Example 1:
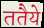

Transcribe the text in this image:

ततैये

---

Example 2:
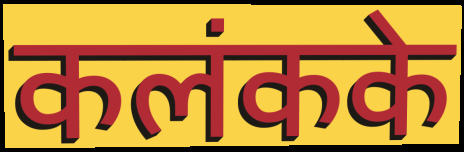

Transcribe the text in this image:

कलंकके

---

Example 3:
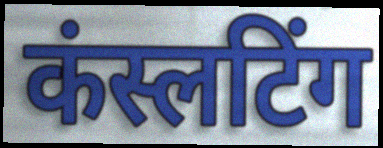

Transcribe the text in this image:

कंस्लटिंग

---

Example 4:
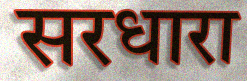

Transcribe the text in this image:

सरधारा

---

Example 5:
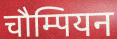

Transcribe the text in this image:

चौम्पियन